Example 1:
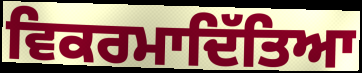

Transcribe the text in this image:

ਵਿਕਰਮਾਦਿੱਤਿਆ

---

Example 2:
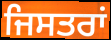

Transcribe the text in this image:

ਜਿਸਤਰਾਂ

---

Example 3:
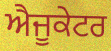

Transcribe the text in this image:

ਐਜੂਕੇਟਰ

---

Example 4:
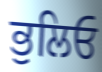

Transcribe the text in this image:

ਭੁਲਿਓ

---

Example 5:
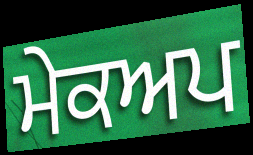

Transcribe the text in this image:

ਮੇਕਅਪ